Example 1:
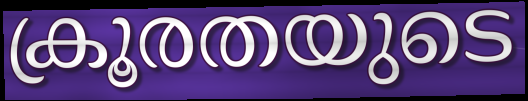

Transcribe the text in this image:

ക്രൂരതയുടെ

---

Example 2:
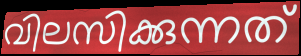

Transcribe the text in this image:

വിലസിക്കുന്നത്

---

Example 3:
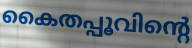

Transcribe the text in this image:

കൈതപ്പൂവിന്റെ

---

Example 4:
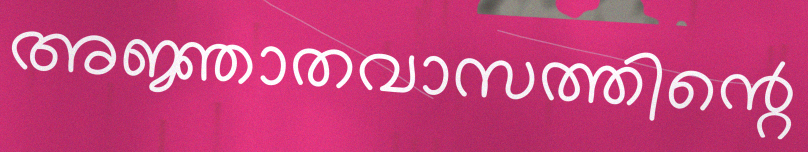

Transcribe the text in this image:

അജ്ഞാതവാസത്തിന്റെ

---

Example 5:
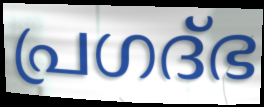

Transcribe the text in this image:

പ്രഗദ്ഭ